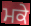
ਮਕੇ